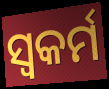
ସ୍ଵକର୍ମ